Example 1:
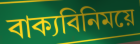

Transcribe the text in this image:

বাক্যবিনিময়ে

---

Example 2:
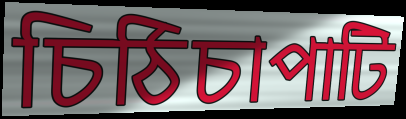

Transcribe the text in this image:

চিঠিচাপাটি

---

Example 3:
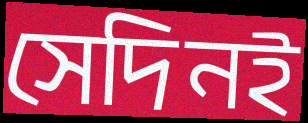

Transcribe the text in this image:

সেদিনই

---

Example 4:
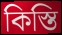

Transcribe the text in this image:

কিস্তি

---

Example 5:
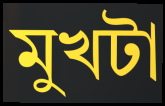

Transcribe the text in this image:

মুখটা